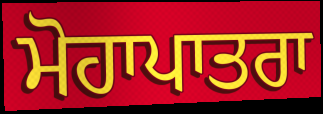
ਮੋਹਾਪਾਤਰਾ